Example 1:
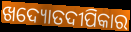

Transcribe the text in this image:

ଖଦ୍ୟୋତଦୀପିକାର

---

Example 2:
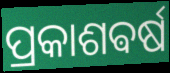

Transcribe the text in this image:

ପ୍ରକାଶଵର୍ଷ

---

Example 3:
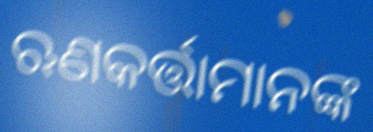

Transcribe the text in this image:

ଋଣକର୍ତ୍ତାମାନଙ୍କ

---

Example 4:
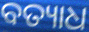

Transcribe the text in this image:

ବତ୍ୟାଧ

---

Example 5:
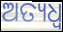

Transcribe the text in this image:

ଅତ୍ୟଧ୍ୱ